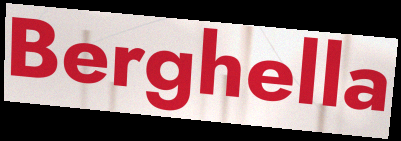
Berghella